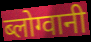
ब्लोग्वानी